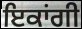
ਇਕਾਂਗੀ